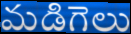
మడిగెలు